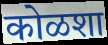
कोळशा